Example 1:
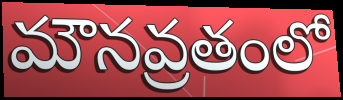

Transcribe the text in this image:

మౌనవ్రతంలో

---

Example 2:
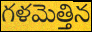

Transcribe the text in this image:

గళమెత్తిన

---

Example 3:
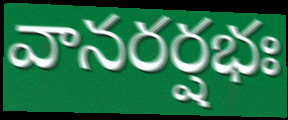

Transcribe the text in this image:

వానరర్షభః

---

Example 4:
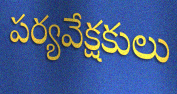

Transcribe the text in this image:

పర్యవేక్షకులు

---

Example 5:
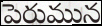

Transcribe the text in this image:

పెరుమున